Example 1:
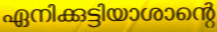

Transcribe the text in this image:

ഏനിക്കുട്ടിയാശാന്റെ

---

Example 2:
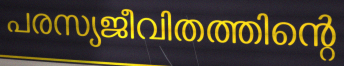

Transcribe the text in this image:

പരസ്യജീവിതത്തിന്റെ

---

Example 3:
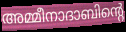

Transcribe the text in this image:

അമ്മീനാദാബിന്റെ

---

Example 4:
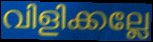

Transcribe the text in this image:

വിളിക്കല്ലേ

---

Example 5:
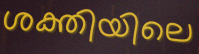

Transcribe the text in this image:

ശക്തിയിലെ